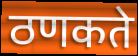
ठणकते